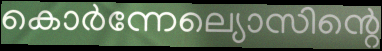
കൊർന്നേല്യൊസിന്റെ